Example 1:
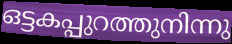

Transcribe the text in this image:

ഒട്ടകപ്പുറത്തുനിന്നു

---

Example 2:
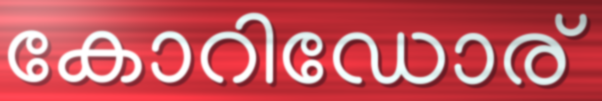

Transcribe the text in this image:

കോറിഡോര്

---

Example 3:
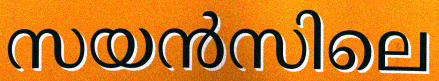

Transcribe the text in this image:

സയൻസിലെ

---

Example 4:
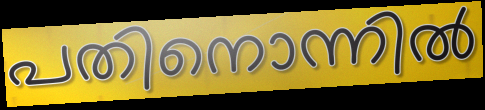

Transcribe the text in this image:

പതിനൊന്നിൽ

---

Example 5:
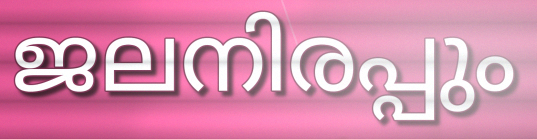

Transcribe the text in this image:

ജലനിരപ്പും